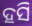
ହସି